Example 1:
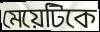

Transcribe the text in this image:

মেয়েটিকে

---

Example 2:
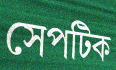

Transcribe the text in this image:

সেপটিক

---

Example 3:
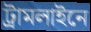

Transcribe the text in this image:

ট্রামলাইনে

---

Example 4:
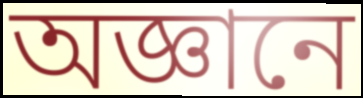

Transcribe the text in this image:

অজ্ঞানে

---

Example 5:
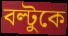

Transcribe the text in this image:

বল্টুকে